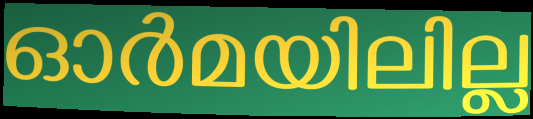
ഓർമയിലില്ല